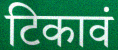
टिकावं